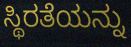
ಸ್ಥಿರತೆಯನ್ನು